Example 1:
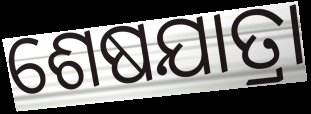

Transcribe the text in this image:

ଶେଷଯାତ୍ରା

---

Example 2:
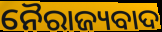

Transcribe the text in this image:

ନୈରାଜ୍ୟବାଦ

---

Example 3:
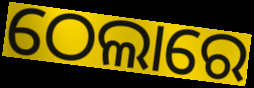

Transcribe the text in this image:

ଠେଲାରେ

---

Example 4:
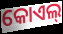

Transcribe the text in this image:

କୋଏଲ୍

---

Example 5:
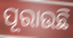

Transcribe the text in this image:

ପୂରାଉଛି